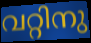
വറ്റിനു